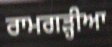
ਰਾਮਗਡ਼੍ਹੀਆ